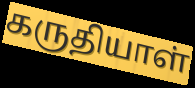
கருதியாள்